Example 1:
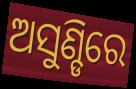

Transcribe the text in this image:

ଅସୁଣ୍ଡିରେ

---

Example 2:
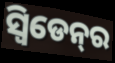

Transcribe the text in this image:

ସ୍ୱିଡେନ୍‌ର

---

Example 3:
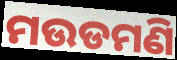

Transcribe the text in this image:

ମଉଡମଣି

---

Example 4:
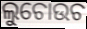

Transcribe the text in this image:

ଲୁଚୋଉଚ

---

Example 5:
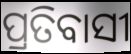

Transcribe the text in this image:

ପ୍ରତିବାସୀ